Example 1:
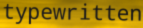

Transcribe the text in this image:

typewritten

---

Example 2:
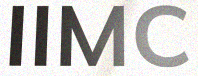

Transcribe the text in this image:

IIMC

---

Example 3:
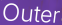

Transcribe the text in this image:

Outer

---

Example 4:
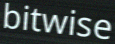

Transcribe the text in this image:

bitwise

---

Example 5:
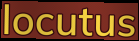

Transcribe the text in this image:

locutus